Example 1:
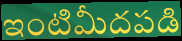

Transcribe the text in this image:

ఇంటిమీదపడి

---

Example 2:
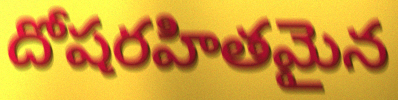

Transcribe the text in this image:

దోషరహితమైన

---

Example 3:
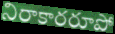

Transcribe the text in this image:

నిరాకారరూపో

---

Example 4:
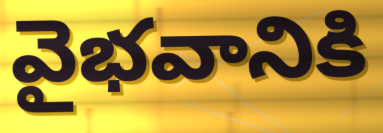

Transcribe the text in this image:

వైభవానికి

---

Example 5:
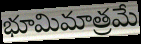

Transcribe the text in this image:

భూమిమాత్రమే